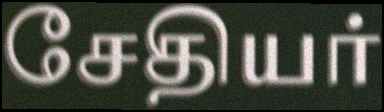
சேதியர்